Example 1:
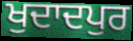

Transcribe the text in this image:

ਖੁਦਾਦਪੁਰ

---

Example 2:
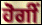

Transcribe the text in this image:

ਹੋਗੀਂ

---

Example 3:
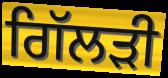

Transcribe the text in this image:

ਗਿੱਲੜੀ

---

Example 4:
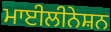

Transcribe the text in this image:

ਮਾਈਲੀਨੇਸ਼ਨ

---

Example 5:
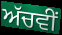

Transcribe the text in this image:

ਅੱਚਵੀਂ